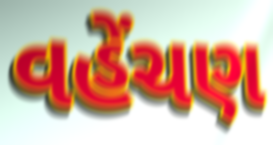
વહેંચણ